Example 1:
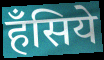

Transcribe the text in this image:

हँसिये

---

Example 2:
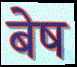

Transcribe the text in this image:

बेष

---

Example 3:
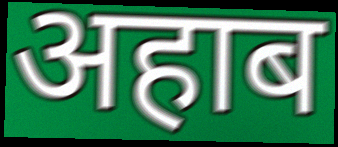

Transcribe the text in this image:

अहाब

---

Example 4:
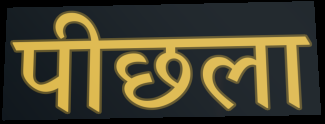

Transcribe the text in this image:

पीछला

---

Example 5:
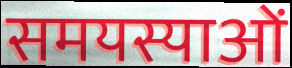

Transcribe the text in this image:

समयस्याओं